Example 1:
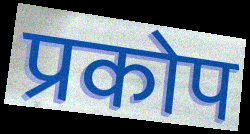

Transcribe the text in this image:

प्रकोप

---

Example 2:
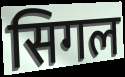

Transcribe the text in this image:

सिगल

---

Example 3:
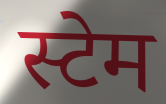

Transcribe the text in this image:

स्टेम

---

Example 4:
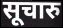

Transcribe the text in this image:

सूचारु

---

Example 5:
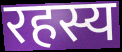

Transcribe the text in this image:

रहस्य